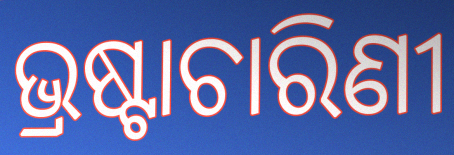
ଭ୍ରଷ୍ଟାଚାରିଣୀ